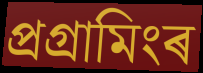
প্ৰগ্ৰামিংৰ